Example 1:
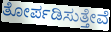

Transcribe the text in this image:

ತೋರ್ಪಡಿಸುತ್ತೇವೆ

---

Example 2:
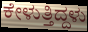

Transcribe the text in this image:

ಕೇಳುತ್ತಿದ್ದಳು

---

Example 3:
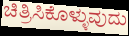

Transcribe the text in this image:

ಚಿತ್ರಿಸಿಕೊಳ್ಳುವುದು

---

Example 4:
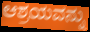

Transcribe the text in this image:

ಆಶ್ರಯವನ್ನು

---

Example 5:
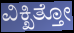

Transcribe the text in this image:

ವಿಕ್ಖಿತ್ತೋ